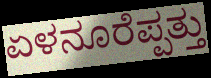
ಏಳನೂರೆಪ್ಪತ್ತು